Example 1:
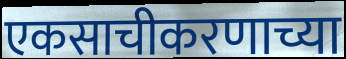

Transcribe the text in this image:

एकसाचीकरणाच्या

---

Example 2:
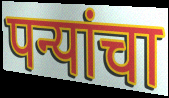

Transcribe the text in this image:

पन्यांचा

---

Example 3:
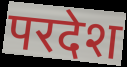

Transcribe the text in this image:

परदेश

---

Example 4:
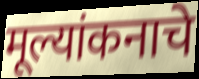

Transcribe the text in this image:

मूल्यांकनाचे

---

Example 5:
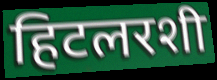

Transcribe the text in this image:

हिटलरशी